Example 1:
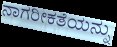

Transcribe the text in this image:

ನಾಗರೀಕತೆಯನ್ನು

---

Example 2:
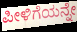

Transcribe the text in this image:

ಪೀಳಿಗೆಯನ್ನೇ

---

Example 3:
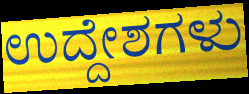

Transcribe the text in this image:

ಉದ್ದೇಶಗಳು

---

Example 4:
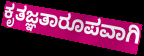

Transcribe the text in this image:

ಕೃತಜ್ಞತಾರೂಪವಾಗಿ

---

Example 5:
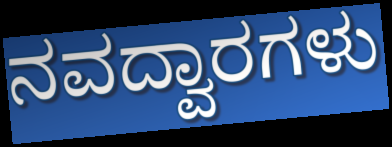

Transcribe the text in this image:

ನವದ್ವಾರಗಳು